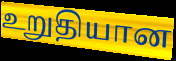
உறுதியான